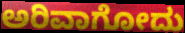
ಅರಿವಾಗೋದು